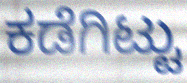
ಕಡೆಗಿಟ್ಟು